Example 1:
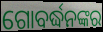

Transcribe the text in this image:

ଗୋବର୍ଦ୍ଧନଙ୍କର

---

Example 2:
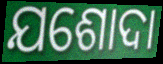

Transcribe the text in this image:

ଯଶୋଦା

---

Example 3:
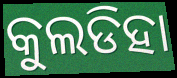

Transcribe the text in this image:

କୁଲଡିହା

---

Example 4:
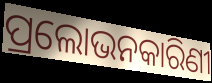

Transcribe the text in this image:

ପ୍ରଲୋଭନକାରିଣୀ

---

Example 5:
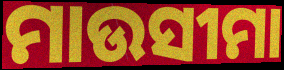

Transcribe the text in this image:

ମାଉସୀମା